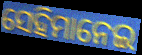
ସେହିମାନେଇ